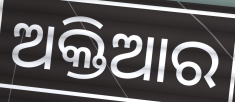
ଅକ୍ତିଆର